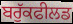
ਬਰੁੱਕਫੀਲਡ